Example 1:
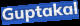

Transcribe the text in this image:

Guptakal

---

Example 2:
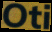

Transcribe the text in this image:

Oti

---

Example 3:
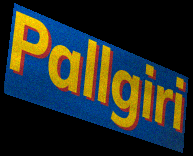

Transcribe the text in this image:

Pallgiri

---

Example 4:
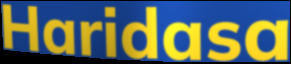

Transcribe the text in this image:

Haridasa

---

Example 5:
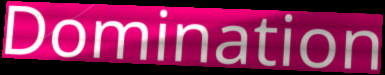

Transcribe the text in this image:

Domination